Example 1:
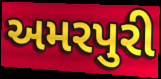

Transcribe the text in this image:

અમરપુરી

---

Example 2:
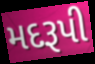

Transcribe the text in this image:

મદરૂપી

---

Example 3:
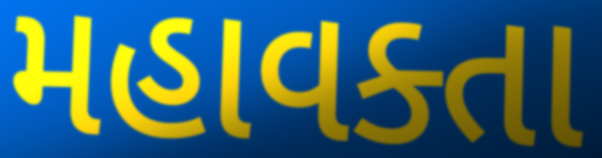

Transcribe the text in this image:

મહાવક્તા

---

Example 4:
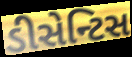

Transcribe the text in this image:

ડીસેન્ટિસ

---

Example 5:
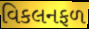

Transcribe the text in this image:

વિકલનફળ